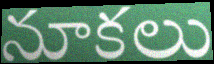
నూకలు